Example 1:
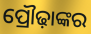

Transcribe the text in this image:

ପ୍ରୌଢ଼ାଙ୍କର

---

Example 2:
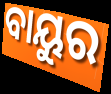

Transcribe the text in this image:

ବାୟୁର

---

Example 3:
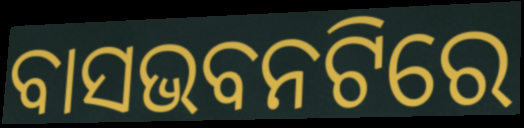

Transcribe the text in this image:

ବାସଭବନଟିରେ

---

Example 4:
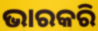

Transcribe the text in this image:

ଭାରକରି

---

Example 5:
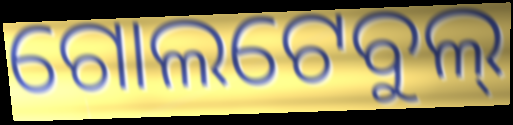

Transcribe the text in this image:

ଗୋଲଟେବୁଲ୍